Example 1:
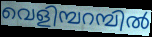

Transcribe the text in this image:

വെളിമ്പറമ്പിൽ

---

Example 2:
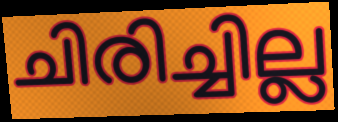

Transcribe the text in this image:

ചിരിച്ചില്ല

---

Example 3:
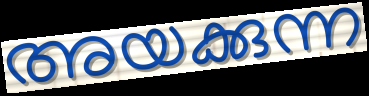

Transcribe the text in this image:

അയക്കുന്ന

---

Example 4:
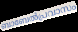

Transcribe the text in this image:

ബാബേൽപ്രവാസം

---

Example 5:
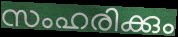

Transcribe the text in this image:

സംഹരിക്കും